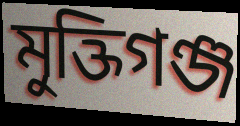
মুক্তিগঞ্জ